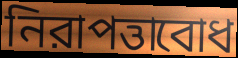
নিরাপত্তাবোধ